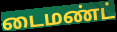
டைமண்ட்